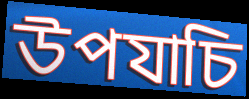
উপযাচি